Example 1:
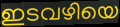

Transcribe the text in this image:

ഇടവഴിയെ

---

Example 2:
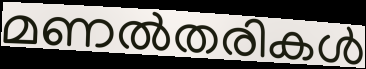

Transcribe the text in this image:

മണൽതരികൾ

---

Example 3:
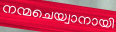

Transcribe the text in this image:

നന്മചെയ്വാനായി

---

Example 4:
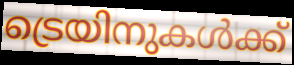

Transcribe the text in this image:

ട്രെയിനുകൾക്ക്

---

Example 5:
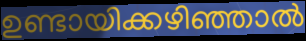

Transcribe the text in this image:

ഉണ്ടായിക്കഴിഞ്ഞാൽ